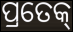
ପ୍ରତେକ୍